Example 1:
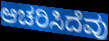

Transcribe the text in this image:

ಆಚರಿಸಿದೆವು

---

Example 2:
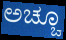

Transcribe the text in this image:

ಅಚ್ಚೂ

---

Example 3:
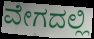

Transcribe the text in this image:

ವೇಗದಲ್ಲಿ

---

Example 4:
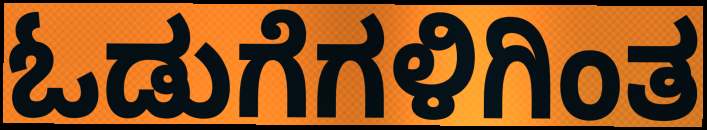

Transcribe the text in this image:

ಓಡುಗೆಗಳಿಗಿಂತ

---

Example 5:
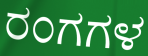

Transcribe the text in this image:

ರಂಗಗಳ